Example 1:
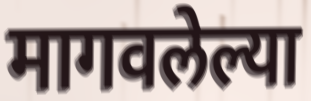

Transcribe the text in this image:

मागवलेल्या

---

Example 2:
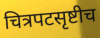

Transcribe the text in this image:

चित्रपटसृष्टीच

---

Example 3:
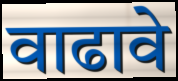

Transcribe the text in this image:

वाढावे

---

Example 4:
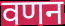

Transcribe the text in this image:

वणन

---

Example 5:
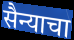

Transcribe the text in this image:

सैन्याचा